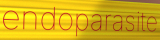
endoparasite